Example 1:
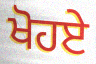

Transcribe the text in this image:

ਖੋਹਏ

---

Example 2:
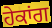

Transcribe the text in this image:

ਹੇਕਾਂਗ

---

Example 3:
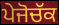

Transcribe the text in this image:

ਪੇਜੋਚੱਕ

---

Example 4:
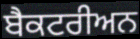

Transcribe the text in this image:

ਬੈਕਟਰੀਅਨ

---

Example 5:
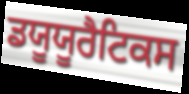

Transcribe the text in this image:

ਡਯੂਯੂਰੈਟਿਕਸ